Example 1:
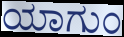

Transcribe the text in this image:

ಯಾಗುಂ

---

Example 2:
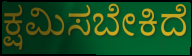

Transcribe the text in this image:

ಕ್ಷಮಿಸಬೇಕಿದೆ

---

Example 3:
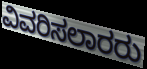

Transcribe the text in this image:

ವಿವರಿಸಲಾರರು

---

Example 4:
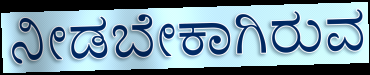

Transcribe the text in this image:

ನೀಡಬೇಕಾಗಿರುವ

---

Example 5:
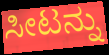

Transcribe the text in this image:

ಸೀಟನ್ನು